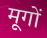
मूगों